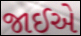
જાઈએ